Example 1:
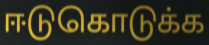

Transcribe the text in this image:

ஈடுகொடுக்க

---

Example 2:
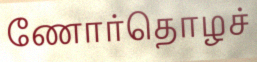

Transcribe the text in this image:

ணோர்தொழச்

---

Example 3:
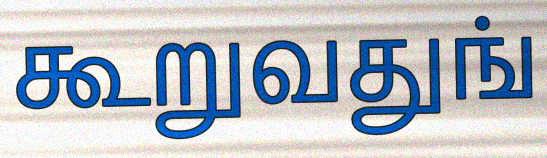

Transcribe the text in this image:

கூறுவதுங்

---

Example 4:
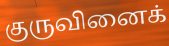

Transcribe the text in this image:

குருவினைக்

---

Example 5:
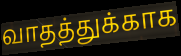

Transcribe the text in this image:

வாதத்துக்காக